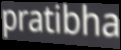
pratibha